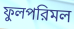
ফুলপরিমল